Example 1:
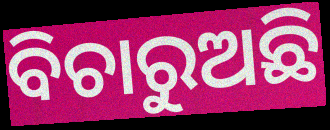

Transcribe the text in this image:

ବିଚାରୁଅଛି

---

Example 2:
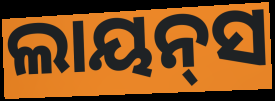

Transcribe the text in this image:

ଲାୟନ୍‌ସ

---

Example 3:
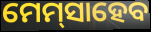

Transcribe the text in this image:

ମେମ୍‌ସାହେବ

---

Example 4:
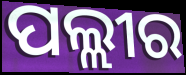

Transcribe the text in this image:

ପଲ୍ଲୀର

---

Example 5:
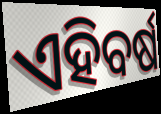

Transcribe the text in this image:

ଏହିବର୍ଷ